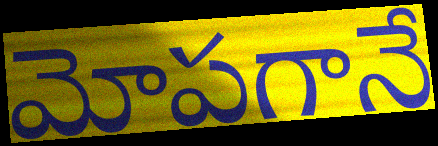
మోపగానే